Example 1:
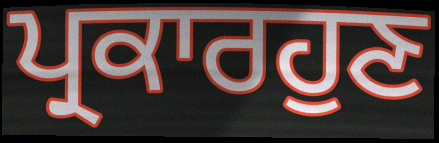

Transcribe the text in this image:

ਪ੍ਰਕਾਰਹੁਣ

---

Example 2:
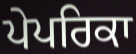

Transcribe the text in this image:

ਪੇਪਰਿਕਾ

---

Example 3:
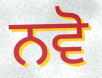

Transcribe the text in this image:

ਨਵੋ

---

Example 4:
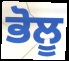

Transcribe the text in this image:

ਭੋਲੂ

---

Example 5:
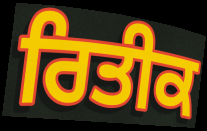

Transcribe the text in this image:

ਰਿਤੀਕ